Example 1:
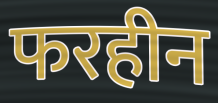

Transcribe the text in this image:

फरहीन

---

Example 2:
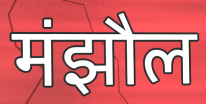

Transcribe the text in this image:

मंझौल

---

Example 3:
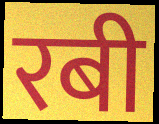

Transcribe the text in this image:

रबी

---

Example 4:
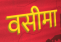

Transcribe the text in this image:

वसीमा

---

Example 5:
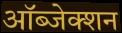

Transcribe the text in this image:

ऑब्‍जेक्‍शन